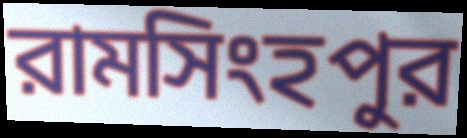
রামসিংহপুর